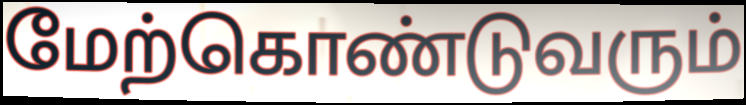
மேற்கொண்டுவரும்